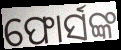
ଫୋର୍ସଙ୍କ